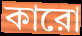
কারো